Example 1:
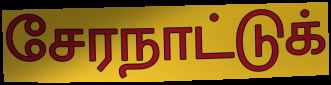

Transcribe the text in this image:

சேரநாட்டுக்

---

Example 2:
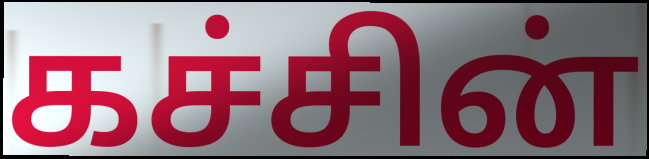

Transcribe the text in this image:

கச்சின்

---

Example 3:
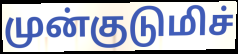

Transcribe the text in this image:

முன்குடுமிச்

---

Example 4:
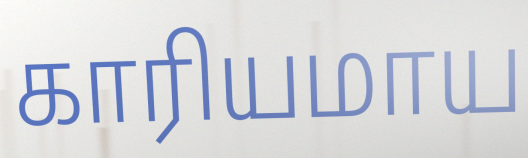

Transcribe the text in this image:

காரியமாய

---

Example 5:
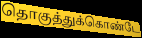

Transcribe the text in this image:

தொகுத்துக்கொண்டே